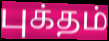
புக்தம்